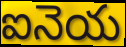
ఐనెయ